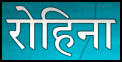
रोहिना